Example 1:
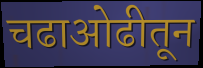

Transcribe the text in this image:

चढाओढीतून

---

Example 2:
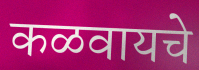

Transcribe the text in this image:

कळवायचे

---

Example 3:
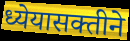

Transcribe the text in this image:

ध्येयासक्तीने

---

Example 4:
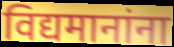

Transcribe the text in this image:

विद्यमानांना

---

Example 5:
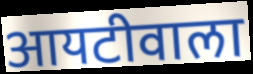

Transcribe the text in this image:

आयटीवाला